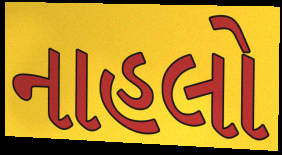
નાહલો